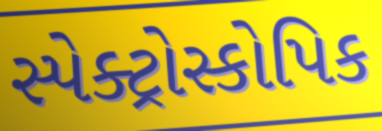
સ્પેક્ટ્રોસ્કોપિક